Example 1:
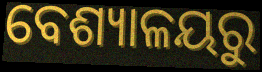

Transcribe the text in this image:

ବେଶ୍ୟାଳୟରୁ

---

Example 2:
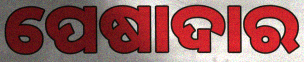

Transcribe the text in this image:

ପେଷାଦାର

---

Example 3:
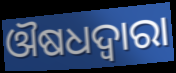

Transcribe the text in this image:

ଔଷଧଦ୍ବାରା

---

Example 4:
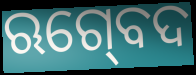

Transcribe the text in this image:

ଋଗ୍‍ବେଦ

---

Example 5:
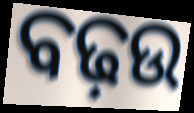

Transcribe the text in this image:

ବଢ଼ଉ